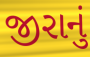
જીરાનું